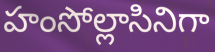
హంసోల్లాసినిగా